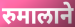
रुमालाने